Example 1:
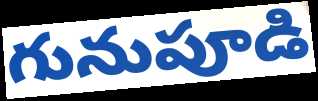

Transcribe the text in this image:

గునుపూడి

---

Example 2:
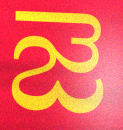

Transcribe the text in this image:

జె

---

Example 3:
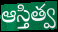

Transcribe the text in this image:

ఆస్తిత్వ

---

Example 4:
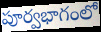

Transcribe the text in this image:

పూర్వభాగంలో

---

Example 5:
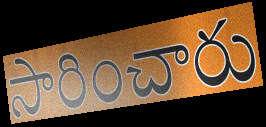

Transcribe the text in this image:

సారించారు